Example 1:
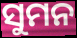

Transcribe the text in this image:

ସୁମନ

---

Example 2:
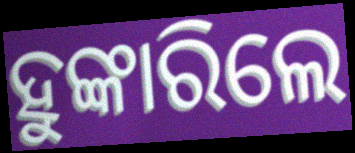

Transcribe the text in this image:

ହୁଙ୍କାରିଲେ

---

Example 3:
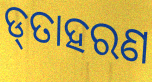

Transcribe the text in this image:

ଡ୍‌ତାହରଣ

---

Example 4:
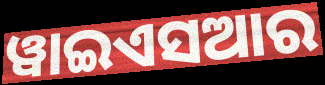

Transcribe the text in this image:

ୱାଇଏସଆର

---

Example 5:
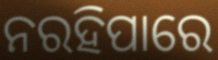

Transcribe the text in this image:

ନରହିପାରେ